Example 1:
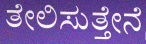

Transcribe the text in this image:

ತೇಲಿಸುತ್ತೇನೆ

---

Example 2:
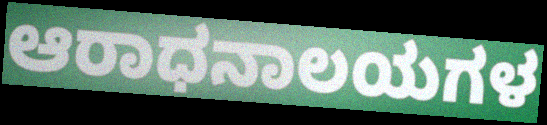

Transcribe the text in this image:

ಆರಾಧನಾಲಯಗಳ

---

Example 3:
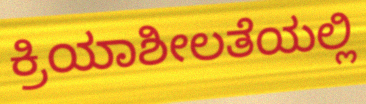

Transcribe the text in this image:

ಕ್ರಿಯಾಶೀಲತೆಯಲ್ಲಿ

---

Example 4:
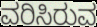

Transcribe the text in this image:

ವರಿಸಿರುವ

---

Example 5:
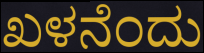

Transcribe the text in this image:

ಖಳನೆಂದು